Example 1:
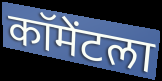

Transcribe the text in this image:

कॉमेंटला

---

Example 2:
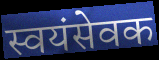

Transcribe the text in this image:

स्वयंसेवक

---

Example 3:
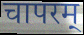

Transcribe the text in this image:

चापरम्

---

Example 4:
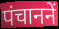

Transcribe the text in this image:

पंचाननें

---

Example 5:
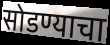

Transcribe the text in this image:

सोडण्याचा